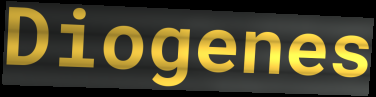
Diogenes